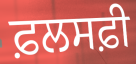
ਫ਼ਲਸਫ਼ੀ